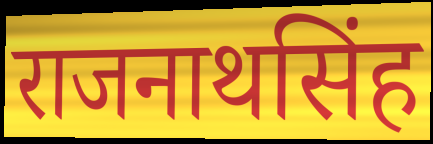
राजनाथसिंह